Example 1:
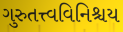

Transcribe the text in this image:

ગુરુતત્ત્વવિનિશ્ચય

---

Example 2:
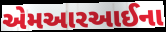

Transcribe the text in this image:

એમઆરઆઈના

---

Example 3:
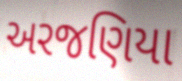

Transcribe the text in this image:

અરજણિયા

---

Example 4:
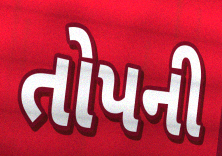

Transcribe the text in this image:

તોપની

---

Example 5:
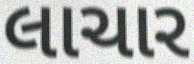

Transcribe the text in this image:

લાચાર